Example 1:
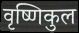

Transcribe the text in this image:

वृष्णिकुल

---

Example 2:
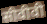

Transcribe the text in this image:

सीवीवी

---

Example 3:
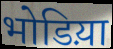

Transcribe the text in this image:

भोडिय़ा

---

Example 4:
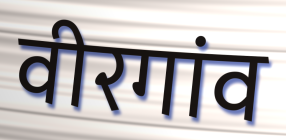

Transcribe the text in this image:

वीरगांव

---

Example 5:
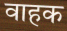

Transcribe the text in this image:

वाहक